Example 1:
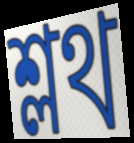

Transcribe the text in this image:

শ্লথ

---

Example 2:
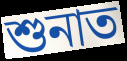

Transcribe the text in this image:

শুনাত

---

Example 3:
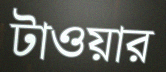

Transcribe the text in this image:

টাওয়ার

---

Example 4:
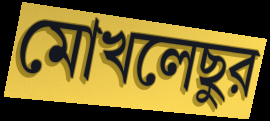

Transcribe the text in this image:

মোখলেছুর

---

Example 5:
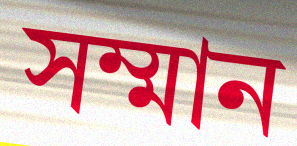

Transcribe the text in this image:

সম্মান